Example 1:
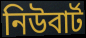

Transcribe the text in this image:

নিউবার্ট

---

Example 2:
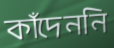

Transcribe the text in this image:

কাঁদেননি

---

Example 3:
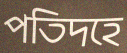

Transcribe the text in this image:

পতিদহে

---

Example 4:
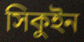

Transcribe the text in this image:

সিকুইন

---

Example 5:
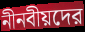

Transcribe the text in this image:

নীনবীয়দের